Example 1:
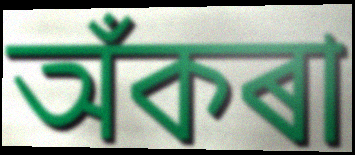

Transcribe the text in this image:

অঁকৰা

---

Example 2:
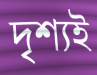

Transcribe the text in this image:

দৃশ্যই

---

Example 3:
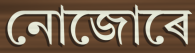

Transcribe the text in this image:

নোজোৰে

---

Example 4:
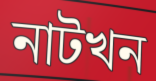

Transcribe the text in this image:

নাটখন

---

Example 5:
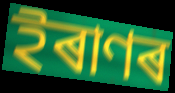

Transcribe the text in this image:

ইৰাণৰ